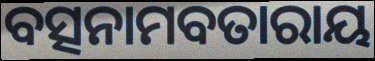
ବତ୍ସନାମବତାରାୟ